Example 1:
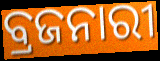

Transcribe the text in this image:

ବ୍ରଜନାରୀ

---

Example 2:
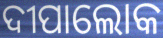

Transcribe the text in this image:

ଦୀପାଲୋକ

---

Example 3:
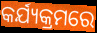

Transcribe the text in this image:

କର୍ଯ୍ୟକ୍ରମରେ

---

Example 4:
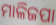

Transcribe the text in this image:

ମାଳିଜପା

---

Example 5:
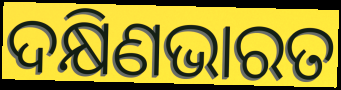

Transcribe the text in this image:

ଦକ୍ଷିଣଭାରତ